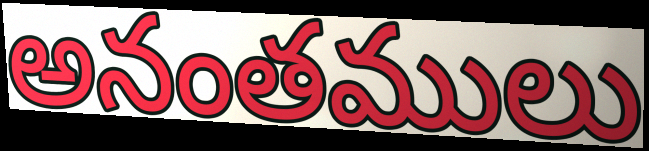
అనంతములు